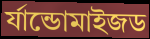
র্যান্ডোমাইজড